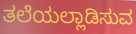
ತಲೆಯಲ್ಲಾಡಿಸುವ